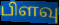
பிளவு